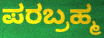
ಪರಬ್ರಹ್ಮ